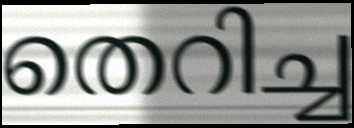
തെറിച്ച